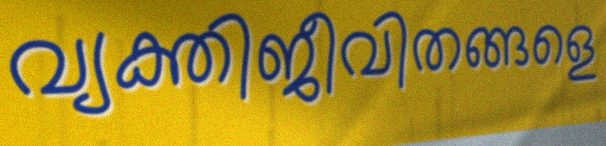
വ്യക്തിജീവിതങ്ങളെ